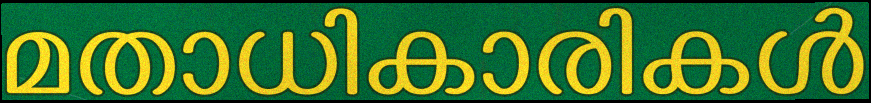
മതാധികാരികൾ